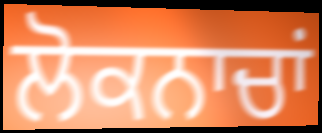
ਲੋਕਨਾਚਾਂ